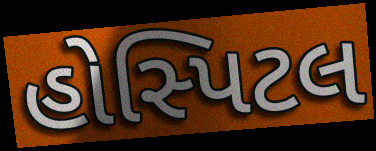
હોસ્પિટલ